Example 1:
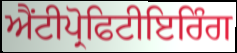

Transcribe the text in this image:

ਐਂਟੀਪ੍ਰੋਫਿਟੀਇਰਿੰਗ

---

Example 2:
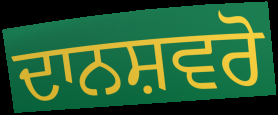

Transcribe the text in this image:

ਦਾਨਸ਼ਵਰੋ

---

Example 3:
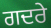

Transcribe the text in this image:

ਗਦਰੇ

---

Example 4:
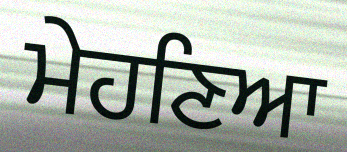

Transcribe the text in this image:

ਮੇਹਣਿਆ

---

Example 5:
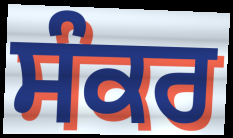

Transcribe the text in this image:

ਸੰਕਰ